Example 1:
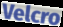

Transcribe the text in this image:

Velcro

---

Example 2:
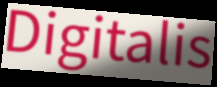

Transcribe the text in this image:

Digitalis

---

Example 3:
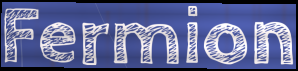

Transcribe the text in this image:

Fermion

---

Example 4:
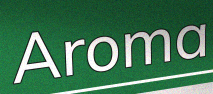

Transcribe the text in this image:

Aroma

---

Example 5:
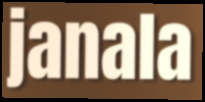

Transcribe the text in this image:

janala